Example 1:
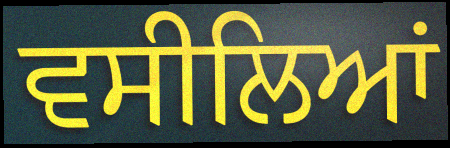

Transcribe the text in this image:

ਵਸੀਲਿਆਂ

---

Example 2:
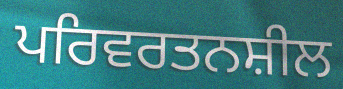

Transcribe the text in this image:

ਪਰਿਵਰਤਨਸ਼ੀਲ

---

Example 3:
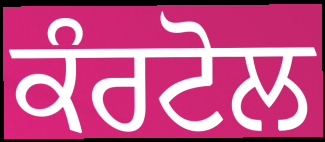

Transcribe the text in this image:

ਕੰਰਟੋਲ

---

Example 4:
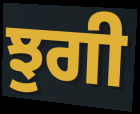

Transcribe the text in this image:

ਝੁਗੀ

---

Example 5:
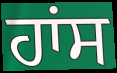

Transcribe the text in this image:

ਹਾਂਸ